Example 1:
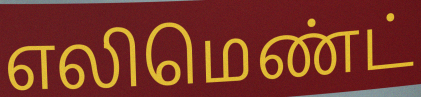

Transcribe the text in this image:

எலிமெண்ட்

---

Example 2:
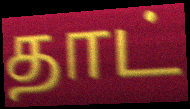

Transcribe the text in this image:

தாட்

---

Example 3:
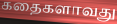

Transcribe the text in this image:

கதைகளாவது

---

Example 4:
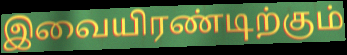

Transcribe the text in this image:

இவையிரண்டிற்கும்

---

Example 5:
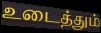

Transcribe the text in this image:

உடைத்தும்